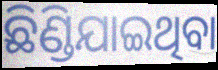
ଛିଣ୍ଡିଯାଇଥିବା